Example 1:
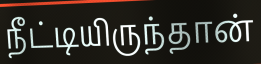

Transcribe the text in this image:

நீட்டியிருந்தான்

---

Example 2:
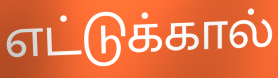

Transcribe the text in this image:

எட்டுக்கால்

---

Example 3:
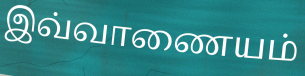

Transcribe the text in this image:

இவ்வாணையம்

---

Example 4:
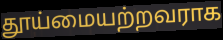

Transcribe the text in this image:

தூய்மையற்றவராக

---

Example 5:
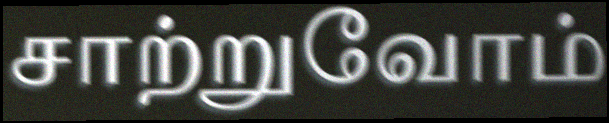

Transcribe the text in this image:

சாற்றுவோம்